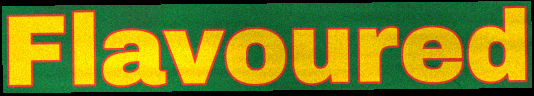
Flavoured